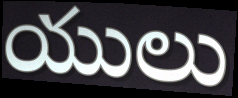
యులు